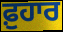
ਫ਼ੁਹਾਰ